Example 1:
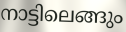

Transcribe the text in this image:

നാട്ടിലെങ്ങും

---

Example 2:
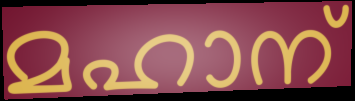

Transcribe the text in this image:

മഹാന്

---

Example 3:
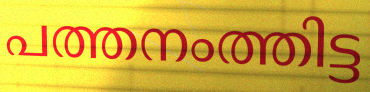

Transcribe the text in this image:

പത്തനംത്തിട്ട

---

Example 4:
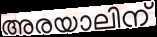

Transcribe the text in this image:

അരയാലിന്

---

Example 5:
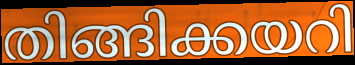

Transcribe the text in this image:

തിങ്ങിക്കയറി